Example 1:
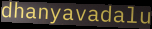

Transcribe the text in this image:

dhanyavadalu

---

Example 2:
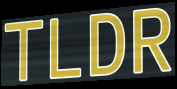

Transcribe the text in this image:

TLDR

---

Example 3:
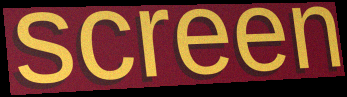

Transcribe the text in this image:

screen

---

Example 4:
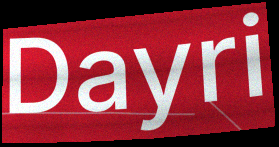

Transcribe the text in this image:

Dayri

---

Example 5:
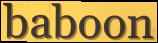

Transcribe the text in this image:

baboon